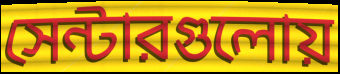
সেন্টারগুলোয়